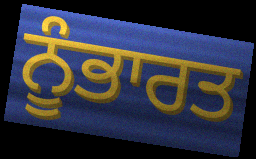
ਨੂੰਭਾਰਤ